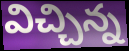
విచ్చిన్న